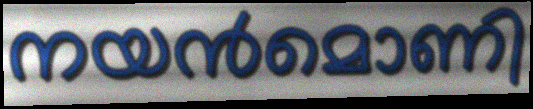
നയൻമൊണി